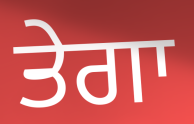
ਤੇਗਾ